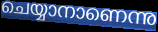
ചെയ്യാനാണെന്നു